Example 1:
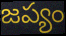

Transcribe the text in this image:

జప్యం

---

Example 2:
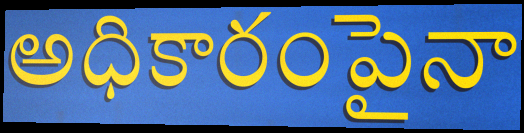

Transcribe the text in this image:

అధికారంపైనా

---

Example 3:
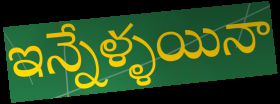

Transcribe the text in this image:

ఇన్నేళ్ళయినా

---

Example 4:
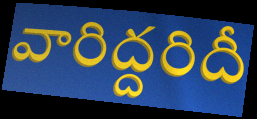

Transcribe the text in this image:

వారిద్దరిదీ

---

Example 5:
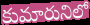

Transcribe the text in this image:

కుమారునిలో